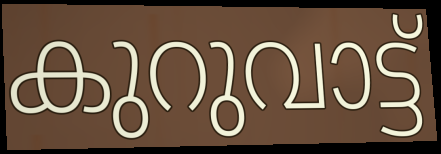
കുറുവാട്ട്